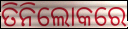
ତିନିଲୋକରେ